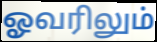
ஓவரிலும்